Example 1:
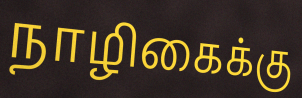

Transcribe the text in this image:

நாழிகைக்கு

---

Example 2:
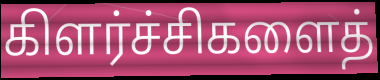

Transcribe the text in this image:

கிளர்ச்சிகளைத்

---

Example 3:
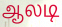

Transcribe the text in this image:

ஆலடி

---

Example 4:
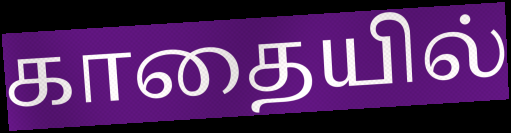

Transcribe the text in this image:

காதையில்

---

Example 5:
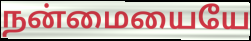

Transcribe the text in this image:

நன்மையையே